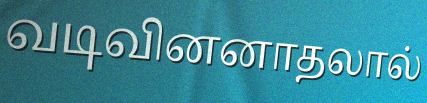
வடிவினனாதலால்